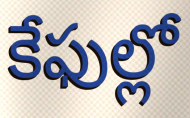
కేఫుల్లో